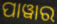
ପାୱାର